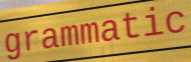
grammatic